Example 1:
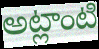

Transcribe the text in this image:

అట్లాంటి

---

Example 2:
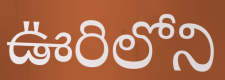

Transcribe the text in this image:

ఊరిలోని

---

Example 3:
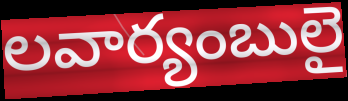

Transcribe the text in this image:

లవార్యంబులై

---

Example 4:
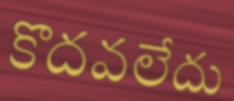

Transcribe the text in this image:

కొదవలేదు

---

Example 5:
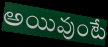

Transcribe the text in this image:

అయివుంటే